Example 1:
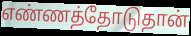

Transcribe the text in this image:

எண்ணத்தோடுதான்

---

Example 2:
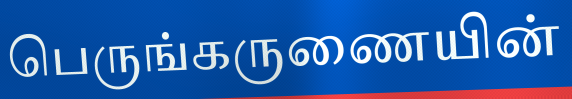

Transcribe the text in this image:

பெருங்கருணையின்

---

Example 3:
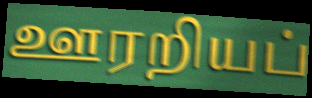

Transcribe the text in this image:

ஊரறியப்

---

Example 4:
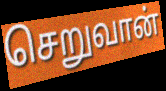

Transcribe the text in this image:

செறுவான்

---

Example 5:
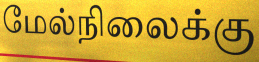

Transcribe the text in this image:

மேல்நிலைக்கு